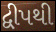
દ્વીપથી